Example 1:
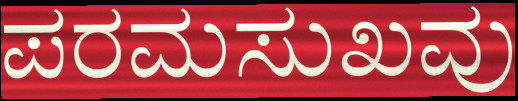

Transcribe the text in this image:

ಪರಮಸುಖವು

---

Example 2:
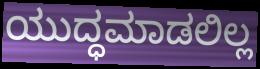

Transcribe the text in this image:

ಯುದ್ಧಮಾಡಲಿಲ್ಲ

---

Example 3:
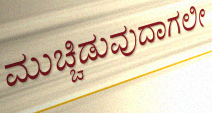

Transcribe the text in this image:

ಮುಚ್ಚಿಡುವುದಾಗಲೀ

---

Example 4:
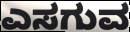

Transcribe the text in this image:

ಎಸಗುವ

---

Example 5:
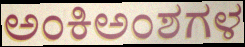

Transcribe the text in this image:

ಅಂಕಿಅಂಶಗಳ